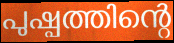
പുഷ്പത്തിന്റെ